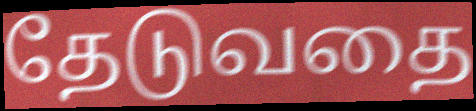
தேடுவதை